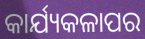
କାର୍ଯ୍ୟକଳାପର